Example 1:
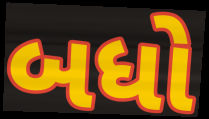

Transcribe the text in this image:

બધો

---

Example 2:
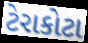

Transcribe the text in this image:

ટેરાકોટા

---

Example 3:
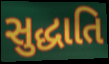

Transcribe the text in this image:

સુદ્ધાતિ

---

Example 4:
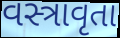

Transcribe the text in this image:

વસ્ત્રાવૃતા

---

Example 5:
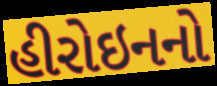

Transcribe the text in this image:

હીરોઇનનો